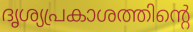
ദൃശ്യപ്രകാശത്തിന്റെ